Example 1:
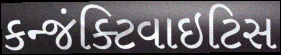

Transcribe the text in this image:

કન્જંક્ટિવાઇટિસ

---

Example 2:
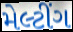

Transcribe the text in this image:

મેલ્ટીંગ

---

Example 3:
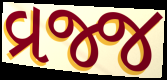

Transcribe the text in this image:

વ્રજ્જ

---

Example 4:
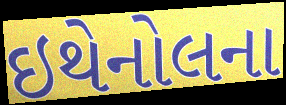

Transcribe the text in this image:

ઇથેનોલના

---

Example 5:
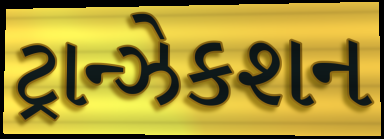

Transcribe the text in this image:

ટ્રાન્ઝેકશન